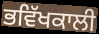
ਭਵਿੱਖਕਾਲੀ